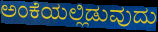
ಅಂಕೆಯಲ್ಲಿಡುವುದು